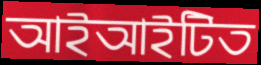
আইআইটিত